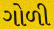
ગોળી